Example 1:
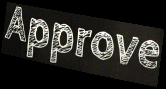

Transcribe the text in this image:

Approve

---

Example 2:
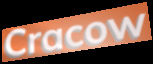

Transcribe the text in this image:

Cracow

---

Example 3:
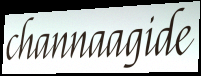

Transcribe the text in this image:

channaagide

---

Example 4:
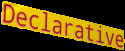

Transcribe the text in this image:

Declarative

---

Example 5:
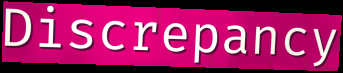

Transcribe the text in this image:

Discrepancy